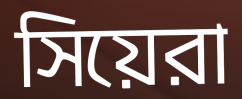
সিয়েরা